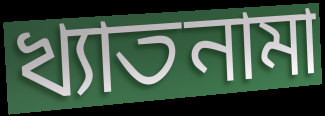
খ্যাতনামা